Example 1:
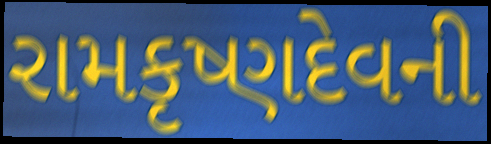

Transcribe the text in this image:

રામકૃષ્ણદેવની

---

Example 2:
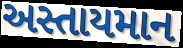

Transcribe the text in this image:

અસ્તાયમાન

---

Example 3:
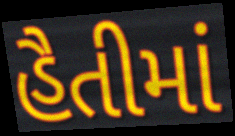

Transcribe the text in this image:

હૈતીમાં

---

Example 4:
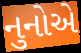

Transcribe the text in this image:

નુનોએ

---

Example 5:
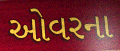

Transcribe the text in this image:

ઓવરના